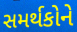
સમર્થકોને